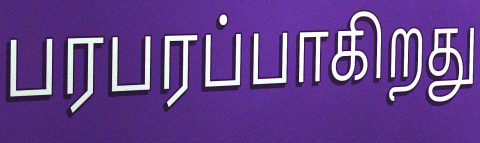
பரபரப்பாகிறது